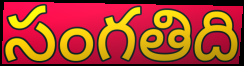
సంగతిది